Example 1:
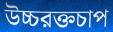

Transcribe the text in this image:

উচ্চরক্তচাপ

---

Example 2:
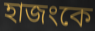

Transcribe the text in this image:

হাজংকে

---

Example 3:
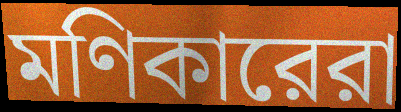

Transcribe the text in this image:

মণিকারেরা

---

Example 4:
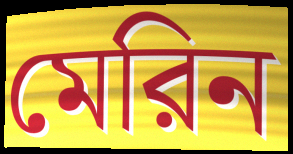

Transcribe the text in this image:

মেরিন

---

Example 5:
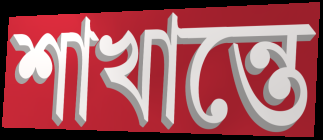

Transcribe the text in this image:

শাখান্তে